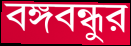
বঙ্গবন্ধুর